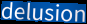
delusion